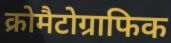
क्रोमैटोग्राफिक